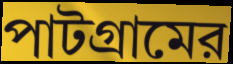
পাটগ্রামের